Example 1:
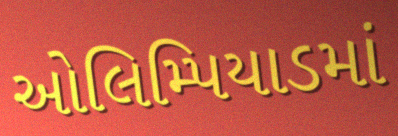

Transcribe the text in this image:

ઓલિમ્પિયાડમાં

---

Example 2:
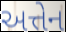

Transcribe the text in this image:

અત્તેન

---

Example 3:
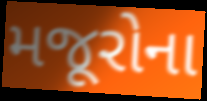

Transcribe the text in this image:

મજૂરોના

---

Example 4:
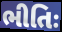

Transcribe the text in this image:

ભીતિઃ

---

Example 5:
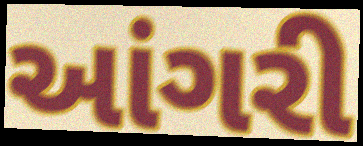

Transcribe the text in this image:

આંગરી